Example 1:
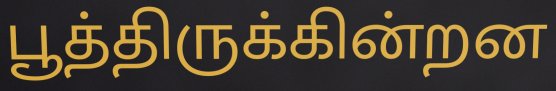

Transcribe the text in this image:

பூத்திருக்கின்றன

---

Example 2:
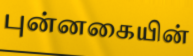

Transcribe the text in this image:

புன்னகையின்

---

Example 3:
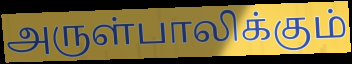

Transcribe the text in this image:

அருள்பாலிக்கும்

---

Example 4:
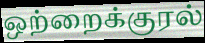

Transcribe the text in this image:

ஒற்றைக்குரல்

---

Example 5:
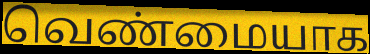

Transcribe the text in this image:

வெண்மையாக